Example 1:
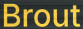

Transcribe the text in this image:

Brout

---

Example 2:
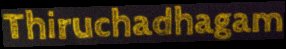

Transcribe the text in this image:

Thiruchadhagam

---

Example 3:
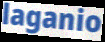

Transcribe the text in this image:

laganio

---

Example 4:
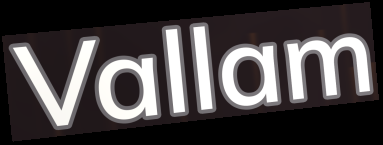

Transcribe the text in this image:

Vallam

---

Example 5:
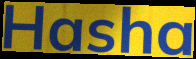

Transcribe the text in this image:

Hasha